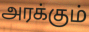
அரக்கும்